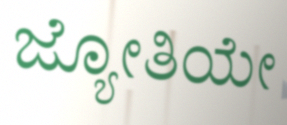
ಜ್ಯೋತಿಯೇ